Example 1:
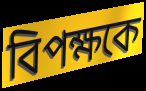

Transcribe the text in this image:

বিপক্ষকে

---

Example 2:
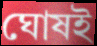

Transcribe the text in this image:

ঘোষই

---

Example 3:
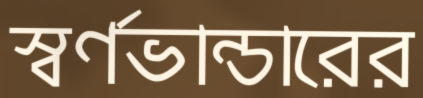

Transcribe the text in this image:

স্বর্ণভান্ডারের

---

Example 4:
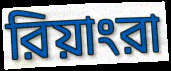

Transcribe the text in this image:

রিয়াংরা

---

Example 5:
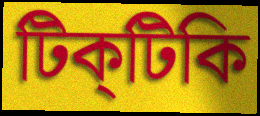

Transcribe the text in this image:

টিক্‌টিকি